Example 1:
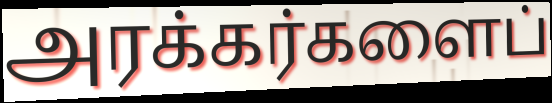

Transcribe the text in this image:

அரக்கர்களைப்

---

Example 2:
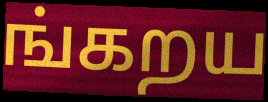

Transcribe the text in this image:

ங்கறய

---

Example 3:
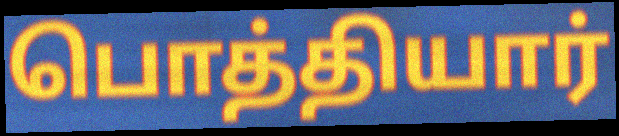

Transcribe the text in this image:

பொத்தியார்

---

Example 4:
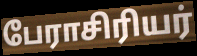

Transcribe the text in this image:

பேராசிரியர்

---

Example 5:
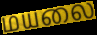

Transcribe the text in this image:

மயலை